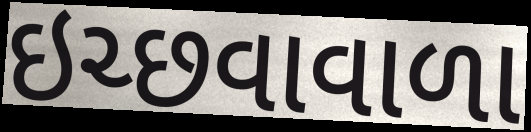
ઇચ્છવાવાળા